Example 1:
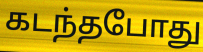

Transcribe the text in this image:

கடந்தபோது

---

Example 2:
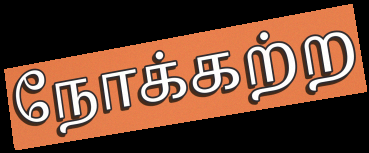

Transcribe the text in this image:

நோக்கற்ற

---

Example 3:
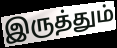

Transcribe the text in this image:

இருத்தும்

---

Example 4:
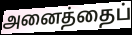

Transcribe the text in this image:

அனைத்தைப்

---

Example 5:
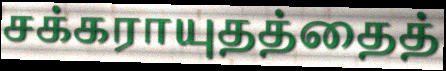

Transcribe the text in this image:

சக்கராயுதத்தைத்